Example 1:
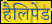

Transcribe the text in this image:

हैलिपेड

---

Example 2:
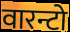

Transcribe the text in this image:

वारन्टो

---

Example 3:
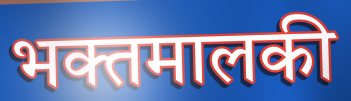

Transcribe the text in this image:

भक्तमालकी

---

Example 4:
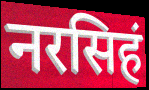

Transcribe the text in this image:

नरसिहं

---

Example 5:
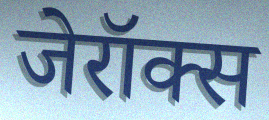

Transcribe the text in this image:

जेरॉक्स